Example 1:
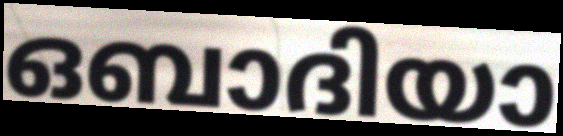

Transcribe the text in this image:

ഒബാദിയാ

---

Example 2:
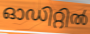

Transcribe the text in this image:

ഓഡിറ്റിൽ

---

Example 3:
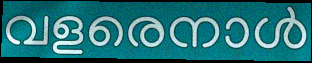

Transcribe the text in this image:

വളരെനാൾ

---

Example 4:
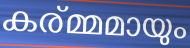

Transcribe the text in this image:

കര്മ്മമായും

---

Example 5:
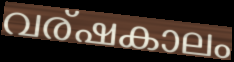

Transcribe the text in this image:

വര്ഷകാലം